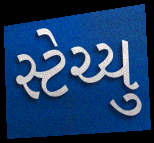
સ્ટેચ્યુ